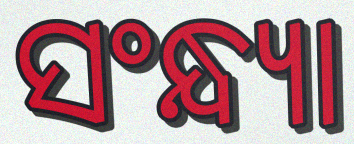
ସଂନ୍ଧ୍ଯା